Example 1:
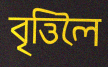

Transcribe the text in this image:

বৃত্তিলৈ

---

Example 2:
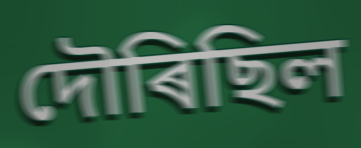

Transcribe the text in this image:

দৌৰিছিল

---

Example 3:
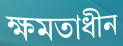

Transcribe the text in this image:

ক্ষমতাধীন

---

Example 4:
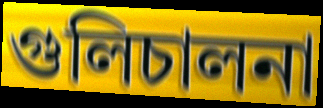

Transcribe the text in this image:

গুলিচালনা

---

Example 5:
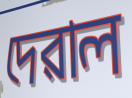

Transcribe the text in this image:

দেৱাল